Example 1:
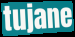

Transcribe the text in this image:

tujane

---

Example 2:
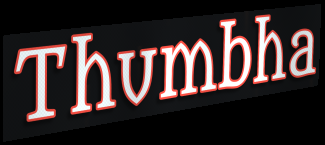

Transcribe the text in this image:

Thumbha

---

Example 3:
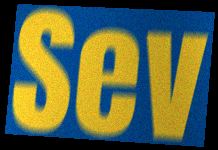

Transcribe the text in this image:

Sev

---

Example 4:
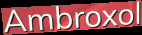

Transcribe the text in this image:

Ambroxol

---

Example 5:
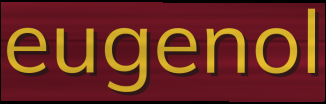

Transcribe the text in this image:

eugenol